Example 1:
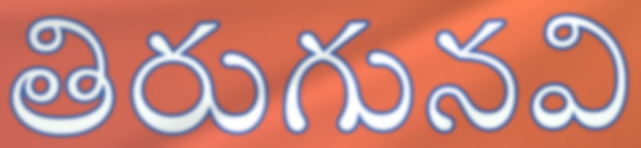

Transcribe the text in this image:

తిరుగునవి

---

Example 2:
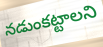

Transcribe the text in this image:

నడుంకట్టాలని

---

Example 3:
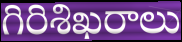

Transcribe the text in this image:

గిరిశిఖరాలు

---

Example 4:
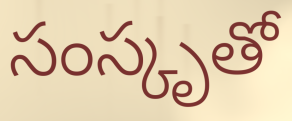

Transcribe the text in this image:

సంస్కృతో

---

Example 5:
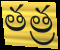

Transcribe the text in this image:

తత్ర